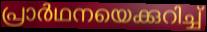
പ്രാർഥനയെക്കുറിച്ച്